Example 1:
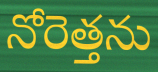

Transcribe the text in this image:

నోరెత్తను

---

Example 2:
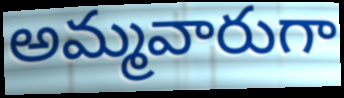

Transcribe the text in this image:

అమ్మవారుగా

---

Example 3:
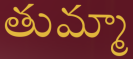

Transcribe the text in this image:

తుమ్మా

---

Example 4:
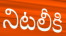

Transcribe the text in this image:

నిటలీకి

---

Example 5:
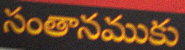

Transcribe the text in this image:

సంతానముకు